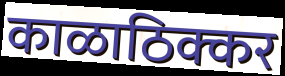
काळाठिक्कर